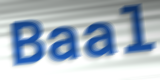
Baal